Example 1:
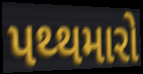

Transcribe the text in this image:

પથ્થમારો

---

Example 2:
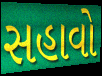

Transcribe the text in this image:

સહાવો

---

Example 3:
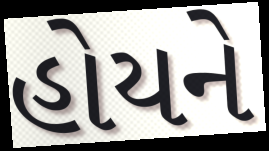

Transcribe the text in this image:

હોયને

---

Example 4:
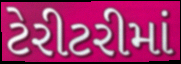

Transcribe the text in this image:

ટેરીટરીમાં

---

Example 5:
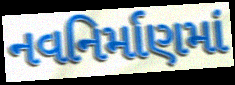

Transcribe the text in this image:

નવનિર્માણમાં